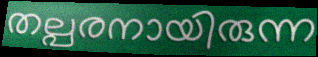
തല്പരനായിരുന്ന